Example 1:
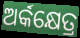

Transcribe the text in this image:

ଅର୍କକ୍ଷେତ୍ର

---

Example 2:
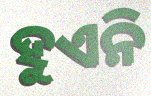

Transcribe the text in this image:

ହୁଏନି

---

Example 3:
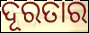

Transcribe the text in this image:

ଦୂରତାର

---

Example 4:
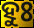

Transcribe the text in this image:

ହୁଃ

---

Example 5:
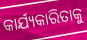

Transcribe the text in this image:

କାର୍ଯ୍ୟକାରିତାକୁ